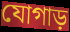
যোগাড়